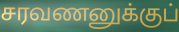
சரவணனுக்குப்